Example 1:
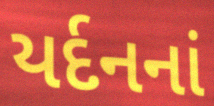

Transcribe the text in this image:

યર્દનનાં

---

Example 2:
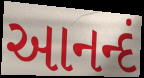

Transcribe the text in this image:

આનન્દં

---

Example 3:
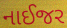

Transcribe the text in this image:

નાઈજર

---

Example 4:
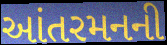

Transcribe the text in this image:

આંતરમનની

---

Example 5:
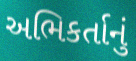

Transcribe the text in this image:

અભિકર્તાનું